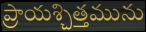
ప్రాయశ్చిత్తమును